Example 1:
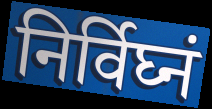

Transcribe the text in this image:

निर्विघ्नं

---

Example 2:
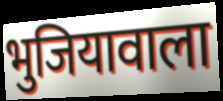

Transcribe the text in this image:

भुजियावाला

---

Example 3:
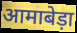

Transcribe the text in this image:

आमाबेड़ा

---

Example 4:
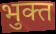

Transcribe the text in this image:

भुक्त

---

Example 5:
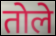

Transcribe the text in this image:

तोले